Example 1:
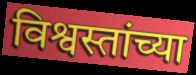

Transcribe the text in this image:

विश्वस्तांच्या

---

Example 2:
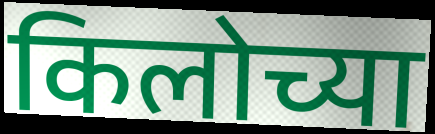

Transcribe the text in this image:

किलोच्या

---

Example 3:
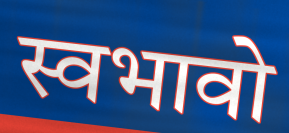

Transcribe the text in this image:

स्वभावो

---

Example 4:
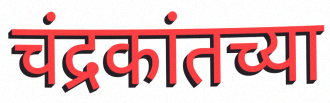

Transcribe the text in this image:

चंद्रकांतच्या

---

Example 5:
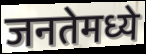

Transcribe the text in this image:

जनतेमध्ये